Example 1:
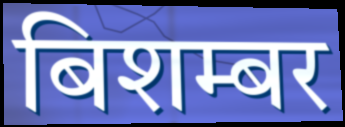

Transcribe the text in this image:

बिशम्बर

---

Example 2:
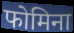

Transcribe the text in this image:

फोमिना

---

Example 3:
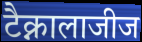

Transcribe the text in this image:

टैक्नालाजीज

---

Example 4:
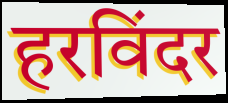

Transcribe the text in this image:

हरविंदर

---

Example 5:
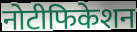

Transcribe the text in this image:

नोटीफिकेशन